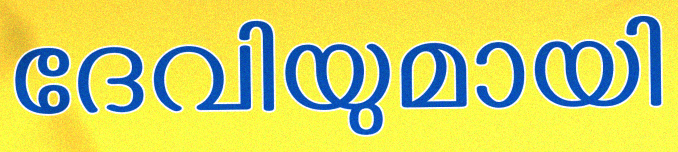
ദേവിയുമായി